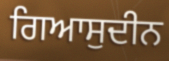
ਗਿਆਸੁਦੀਨ